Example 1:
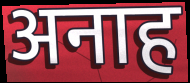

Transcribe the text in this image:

अनाह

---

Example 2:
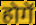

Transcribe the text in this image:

होगें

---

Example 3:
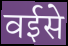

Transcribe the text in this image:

वईसे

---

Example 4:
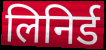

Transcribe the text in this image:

लिनिर्ड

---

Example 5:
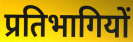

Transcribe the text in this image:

प्रतिभागियों